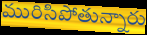
మురిసిపోతున్నారు